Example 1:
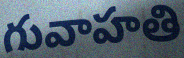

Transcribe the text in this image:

గువాహతి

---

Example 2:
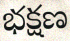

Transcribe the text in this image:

భక్షణ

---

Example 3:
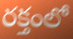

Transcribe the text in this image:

రక్తంలో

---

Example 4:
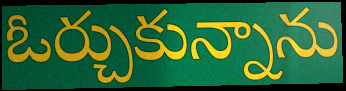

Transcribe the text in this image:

ఓర్చుకున్నాను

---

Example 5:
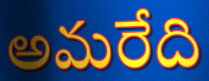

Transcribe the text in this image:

అమరేది